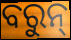
ବରୁନ୍